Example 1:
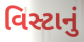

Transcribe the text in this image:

વિસ્ટાનું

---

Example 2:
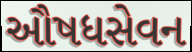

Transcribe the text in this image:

ઔષધસેવન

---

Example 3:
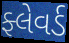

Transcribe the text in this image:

ફ્લેવર્ડ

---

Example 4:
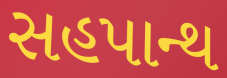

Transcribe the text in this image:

સહપાન્થ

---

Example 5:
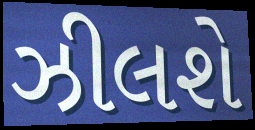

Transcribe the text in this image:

ઝીલશે